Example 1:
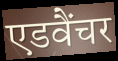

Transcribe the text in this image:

एडवैंचर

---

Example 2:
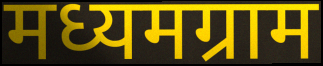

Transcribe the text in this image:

मध्यमग्राम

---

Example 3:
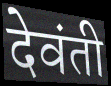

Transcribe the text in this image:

देवंती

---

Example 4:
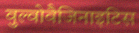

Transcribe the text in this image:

वुल्वोवैजिनाइटिस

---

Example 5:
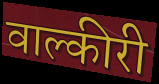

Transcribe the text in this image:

वाल्कीरी